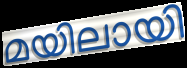
മയിലായി